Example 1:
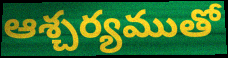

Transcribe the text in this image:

ఆశ్చర్యముతో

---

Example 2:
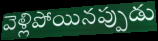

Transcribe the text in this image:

వెళ్లిపోయినప్పుడు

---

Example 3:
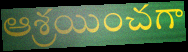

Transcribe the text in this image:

ఆశ్రయించగా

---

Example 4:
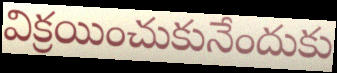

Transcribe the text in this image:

విక్రయించుకునేందుకు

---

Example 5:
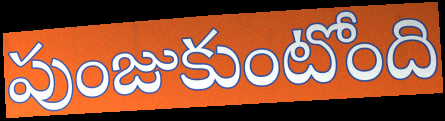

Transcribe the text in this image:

పుంజుకుంటోంది